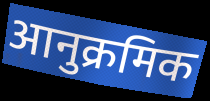
आनुक्रमिक